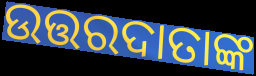
ଉତ୍ତରଦାତାଙ୍କ